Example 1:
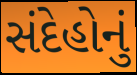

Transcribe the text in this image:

સંદેહોનું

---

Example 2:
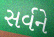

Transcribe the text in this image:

સર્વને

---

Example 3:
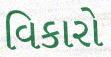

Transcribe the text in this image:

વિકારો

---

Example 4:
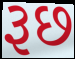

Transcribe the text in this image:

રૂછ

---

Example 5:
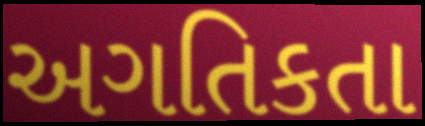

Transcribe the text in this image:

અગતિકતા